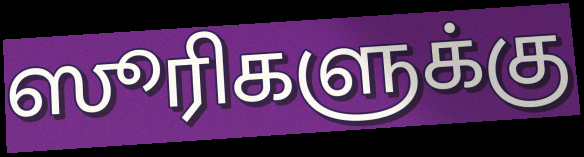
ஸூரிகளுக்கு